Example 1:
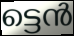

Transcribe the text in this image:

ട്ടെൻ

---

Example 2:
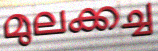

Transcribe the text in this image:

മുലക്കച്ച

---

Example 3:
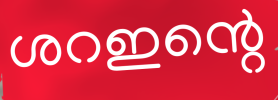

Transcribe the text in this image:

ശറഇന്റെ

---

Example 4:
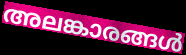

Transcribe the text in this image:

അലങ്കാരങ്ങൾ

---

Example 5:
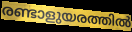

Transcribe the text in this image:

രണ്ടാളുയരത്തിൽ